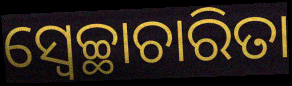
ସ୍ୱେଚ୍ଛାଚାରିତା